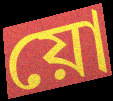
য়ো